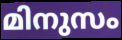
മിനുസം